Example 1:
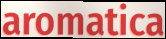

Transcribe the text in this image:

aromatica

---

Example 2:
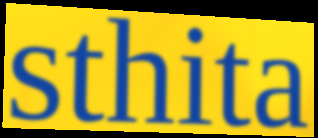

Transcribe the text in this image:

sthita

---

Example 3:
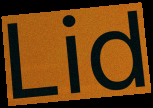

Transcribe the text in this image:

Lid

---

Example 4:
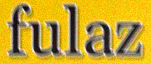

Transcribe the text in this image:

fulaz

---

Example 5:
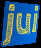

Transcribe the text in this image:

jui